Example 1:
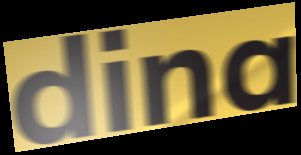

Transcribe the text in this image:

dina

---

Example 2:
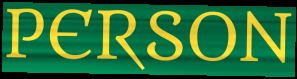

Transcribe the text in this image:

PERSON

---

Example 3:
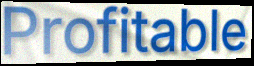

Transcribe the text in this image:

Profitable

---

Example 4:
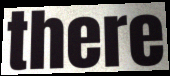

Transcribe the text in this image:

there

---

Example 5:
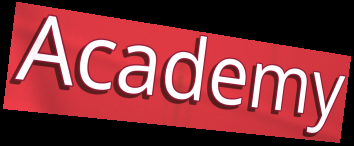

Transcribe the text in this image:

Academy